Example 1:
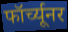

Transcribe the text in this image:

फॉर्च्यूनर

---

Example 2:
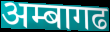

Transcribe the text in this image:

अम्बागढ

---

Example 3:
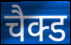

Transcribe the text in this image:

चैक्ड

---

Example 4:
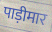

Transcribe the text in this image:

पाड़ीमार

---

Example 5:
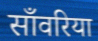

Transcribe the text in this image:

साँवरिया